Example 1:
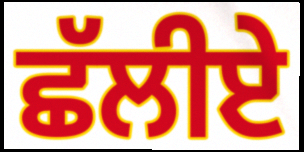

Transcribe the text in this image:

ਛੱਲੀਏ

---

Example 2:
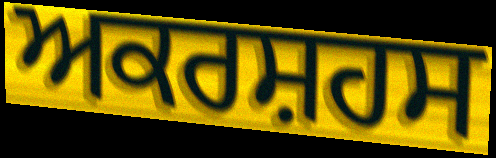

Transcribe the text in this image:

ਅਕਰਸ਼ਹਸ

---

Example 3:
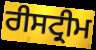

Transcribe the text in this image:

ਰੀਸਟ੍ਰੀਮ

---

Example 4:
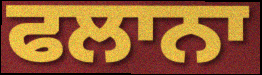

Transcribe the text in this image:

ਫਲਾਨਾ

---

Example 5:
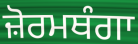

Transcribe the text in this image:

ਜ਼ੋਰਮਥੰਗਾ